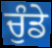
ਚੁੰਡੇ